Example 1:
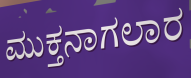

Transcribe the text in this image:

ಮುಕ್ತನಾಗಲಾರ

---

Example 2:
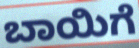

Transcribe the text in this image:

ಬಾಯಿಗೆ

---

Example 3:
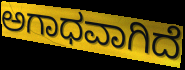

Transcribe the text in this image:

ಅಗಾಧವಾಗಿದೆ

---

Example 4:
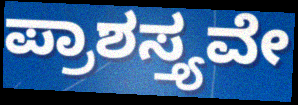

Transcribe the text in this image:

ಪ್ರಾಶಸ್ತ್ಯವೇ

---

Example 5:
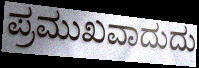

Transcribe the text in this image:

ಪ್ರಮುಖವಾದುದು